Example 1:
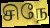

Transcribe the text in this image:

சிநே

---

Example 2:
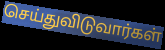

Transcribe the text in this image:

செய்துவிடுவார்கள்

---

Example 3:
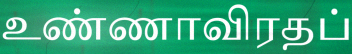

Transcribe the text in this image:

உண்ணாவிரதப்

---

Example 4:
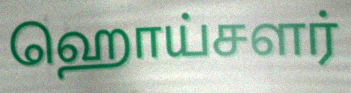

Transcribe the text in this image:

ஹொய்சளர்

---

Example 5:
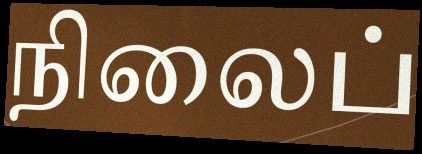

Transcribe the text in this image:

நிலைப்